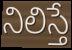
నిలిస్తే